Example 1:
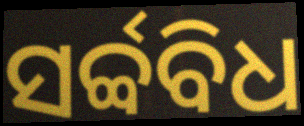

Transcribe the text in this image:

ସର୍ବ୍ବବିଧ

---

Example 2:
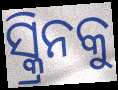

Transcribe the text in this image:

ସ୍କ୍ରିନକୁ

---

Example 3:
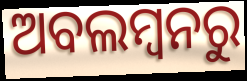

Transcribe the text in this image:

ଅବଲମ୍ବନରୁ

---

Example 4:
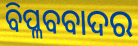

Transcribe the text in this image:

ବିପ୍ଳବବାଦର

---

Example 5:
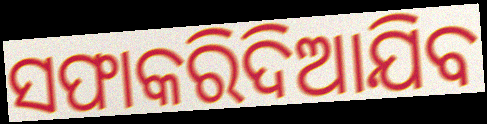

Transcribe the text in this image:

ସଫାକରିଦିଆଯିବ